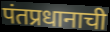
पंतप्रधानाची